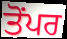
ਤੋਂਪਰ